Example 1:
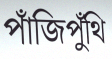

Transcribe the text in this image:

পাঁজিপুঁথি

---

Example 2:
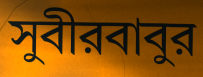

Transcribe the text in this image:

সুবীরবাবুর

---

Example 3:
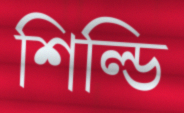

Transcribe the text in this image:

শিল্ডি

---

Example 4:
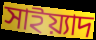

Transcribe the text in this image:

সাইয়্যাদ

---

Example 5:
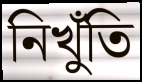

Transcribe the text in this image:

নিখুঁতি